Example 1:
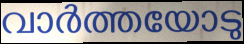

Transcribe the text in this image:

വാർത്തയോടു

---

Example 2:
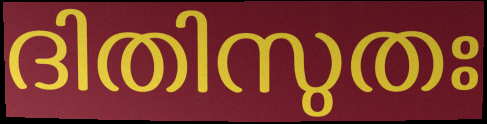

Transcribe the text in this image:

ദിതിസുതഃ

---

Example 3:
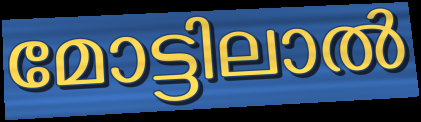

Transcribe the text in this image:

മോട്ടിലാൽ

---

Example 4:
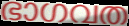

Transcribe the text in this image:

ഭാഗവത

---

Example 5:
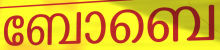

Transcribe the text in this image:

ബോബെ